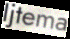
Ijtema